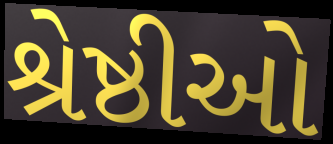
શ્રેષ્ઠીઓ